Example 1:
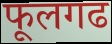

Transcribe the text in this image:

फूलगढ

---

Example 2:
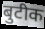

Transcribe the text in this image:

बुटीक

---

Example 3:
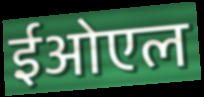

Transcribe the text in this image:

ईओएल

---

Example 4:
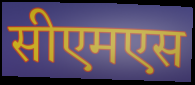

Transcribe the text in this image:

सीएमएस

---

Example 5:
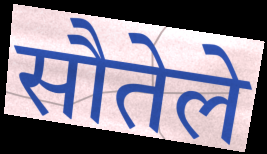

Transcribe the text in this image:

सौतेले